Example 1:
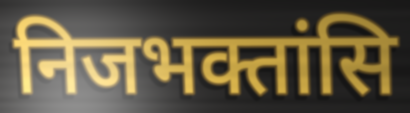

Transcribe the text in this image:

निजभक्तांसि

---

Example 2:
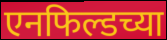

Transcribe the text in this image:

एनफिल्डच्या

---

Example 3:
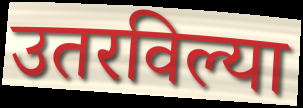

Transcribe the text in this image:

उतरविल्या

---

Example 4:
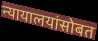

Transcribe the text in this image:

न्यायालयांसोबत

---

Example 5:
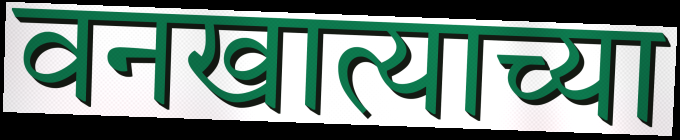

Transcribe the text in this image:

वनखात्याच्या